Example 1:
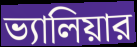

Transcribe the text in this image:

ভ্যালিয়ার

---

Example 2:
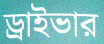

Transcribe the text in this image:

ড্রাইভার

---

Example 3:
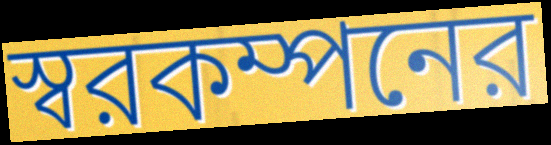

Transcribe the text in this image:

স্বরকম্পনের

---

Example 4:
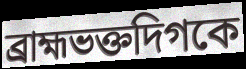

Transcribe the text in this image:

ব্রাহ্মভক্তদিগকে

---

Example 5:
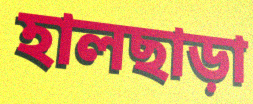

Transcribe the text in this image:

হালছাড়া